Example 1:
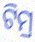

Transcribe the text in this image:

ଟିମ୍ର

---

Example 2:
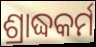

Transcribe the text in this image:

ଶ୍ରାଦ୍ଧକର୍ମ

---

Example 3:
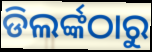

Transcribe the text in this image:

ଡିଲର୍ଙ୍କଠାରୁ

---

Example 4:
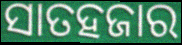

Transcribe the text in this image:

ସାତହଜାର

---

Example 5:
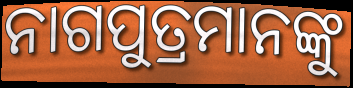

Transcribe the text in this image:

ନାଗପୁତ୍ରମାନଙ୍କୁ